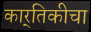
कार्तिकीचा